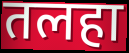
तलहा